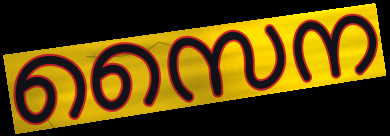
സൈന